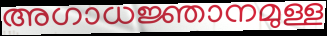
അഗാധജ്ഞാനമുള്ള